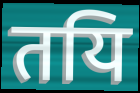
तयि